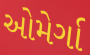
ઓમેર્ગા